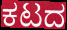
ಕಟದ